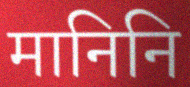
मानिनि